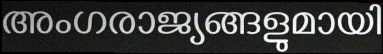
അംഗരാജ്യങ്ങളുമായി